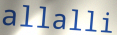
allalli